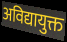
अविद्यायुक्त